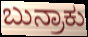
ಬುನ್ರಾಕು